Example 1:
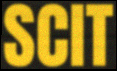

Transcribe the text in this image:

SCIT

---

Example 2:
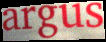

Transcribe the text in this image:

argus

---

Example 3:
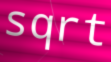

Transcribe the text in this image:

sqrt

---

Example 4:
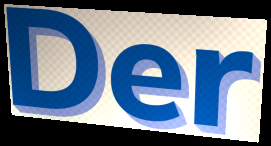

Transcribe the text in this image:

Der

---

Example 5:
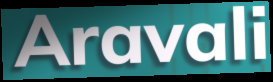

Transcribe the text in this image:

Aravali